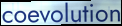
coevolution